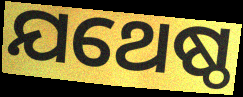
ଯଥେଷ୍ଠ